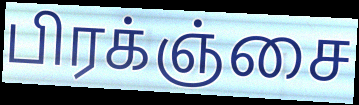
பிரக்ஞ்சை